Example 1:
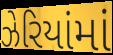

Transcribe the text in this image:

ઝેરિયાંમાં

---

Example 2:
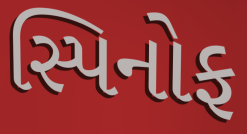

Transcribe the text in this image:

સ્પિનોફ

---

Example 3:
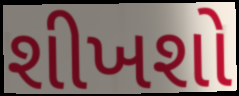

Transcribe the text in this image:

શીખશો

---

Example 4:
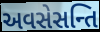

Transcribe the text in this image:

અવસેસન્તિ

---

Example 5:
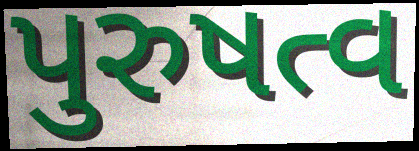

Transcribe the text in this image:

પુરુષત્વ